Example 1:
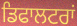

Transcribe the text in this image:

ਡਿਫਾਲਟਰਾਂ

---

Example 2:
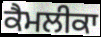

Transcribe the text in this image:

ਕੈਮਲੀਕਾ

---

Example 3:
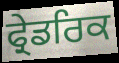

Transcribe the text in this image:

ਫ੍ਰੇਡਰਿਕ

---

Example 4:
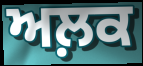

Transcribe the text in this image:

ਅਲ਼ਕ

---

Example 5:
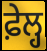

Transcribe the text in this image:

ਫ਼ੇਲ੍ਹ